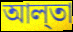
আল্‌তা